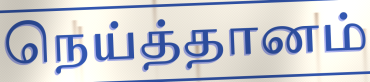
நெய்த்தானம்